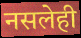
नसलेही